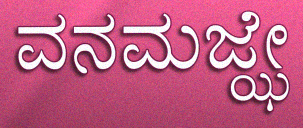
ವನಮಜ್ಝೇ